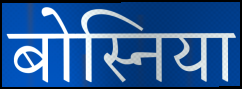
बोस्निया